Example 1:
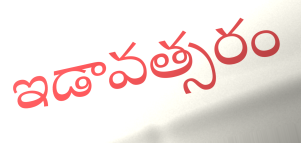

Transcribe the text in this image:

ఇడావత్సరం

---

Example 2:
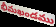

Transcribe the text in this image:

భీమఖండము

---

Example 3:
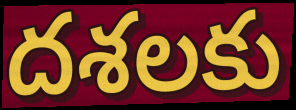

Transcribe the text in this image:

దశలకు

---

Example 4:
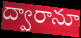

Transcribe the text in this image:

ద్వారానూ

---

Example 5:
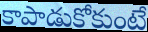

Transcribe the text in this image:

కాపాడుకోకుంటే